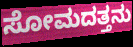
ಸೋಮದತ್ತನು